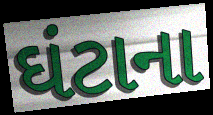
ઘંટાના